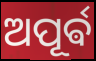
ଅପୂର୍ଵ